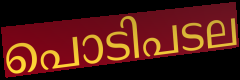
പൊടിപടല